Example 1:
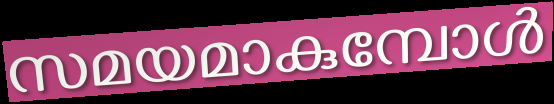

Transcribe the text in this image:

സമയമാകുമ്പോൾ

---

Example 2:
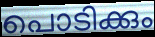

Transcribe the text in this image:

പൊടിക്കും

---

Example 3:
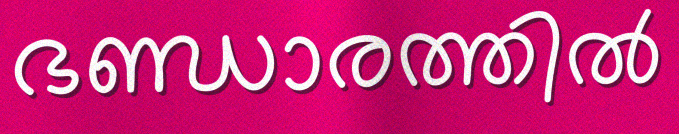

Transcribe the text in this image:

ഭണ്ഡാരത്തിൽ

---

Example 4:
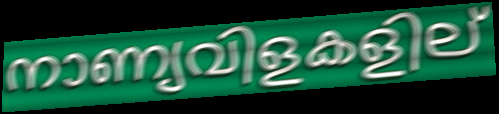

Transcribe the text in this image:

നാണ്യവിളകളില്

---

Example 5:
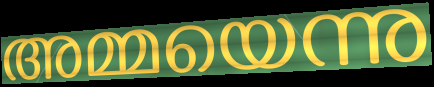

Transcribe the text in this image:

അമ്മയെന്നു